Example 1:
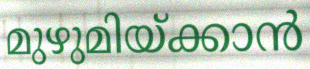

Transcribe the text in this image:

മുഴുമിയ്ക്കാൻ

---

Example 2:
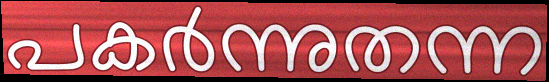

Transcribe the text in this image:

പകർന്നുതന്ന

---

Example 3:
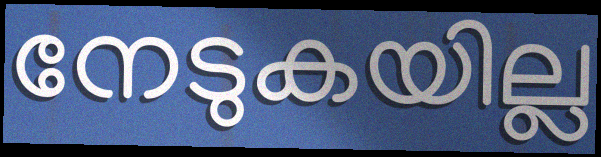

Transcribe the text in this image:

നേടുകയില്ല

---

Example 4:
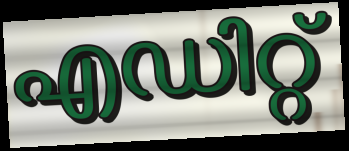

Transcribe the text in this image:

എഡിറ്റ്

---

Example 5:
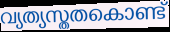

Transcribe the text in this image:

വ്യത്യസ്തതകൊണ്ട്